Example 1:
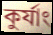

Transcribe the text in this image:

কুর্যাং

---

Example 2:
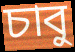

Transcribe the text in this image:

চাবু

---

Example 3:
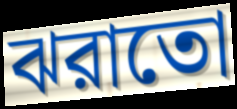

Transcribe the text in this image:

ঝরাতো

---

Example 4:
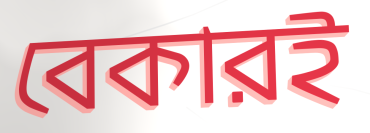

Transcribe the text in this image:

বেকারই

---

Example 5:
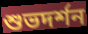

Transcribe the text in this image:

শুভদর্শন